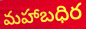
మహాబధిర